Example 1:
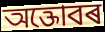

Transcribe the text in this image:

অক্তোবৰ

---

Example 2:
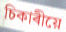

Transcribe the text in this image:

চিকাৰীয়ে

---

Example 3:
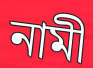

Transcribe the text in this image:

নামী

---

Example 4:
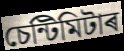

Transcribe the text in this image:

চেন্টিমিটাৰ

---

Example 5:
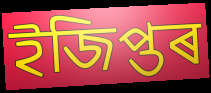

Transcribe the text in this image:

ইজিপ্তৰ